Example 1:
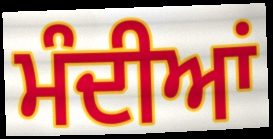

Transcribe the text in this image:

ਮੰਦੀਆਂ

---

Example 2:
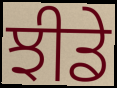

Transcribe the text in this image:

ਝੀਡੇ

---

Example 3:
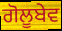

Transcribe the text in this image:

ਗੋਲੂਬੇਵ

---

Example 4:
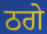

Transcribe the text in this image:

ਠਗੇ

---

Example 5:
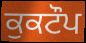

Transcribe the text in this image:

ਕੁਕਟੌਪ